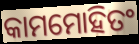
କାମମୋହିତଂ